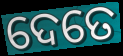
ଦେତେ